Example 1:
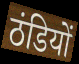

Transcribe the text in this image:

ठंडियों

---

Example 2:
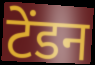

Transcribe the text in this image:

टेंडन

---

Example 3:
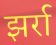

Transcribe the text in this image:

झर्रा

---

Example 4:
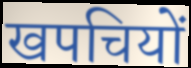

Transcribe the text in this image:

खपचियों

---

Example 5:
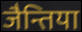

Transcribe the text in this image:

जैन्तिया